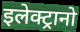
इलेक्ट्रानो